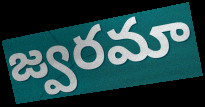
జ్వరమా